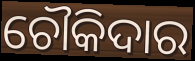
ଚୌକିଦାର